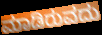
ಮಾಡಿರುವದು